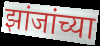
झांजांच्या